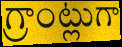
గ్రాంట్లుగా